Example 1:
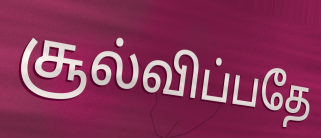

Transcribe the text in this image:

சூல்விப்பதே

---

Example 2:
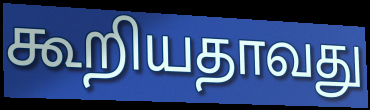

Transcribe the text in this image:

கூறியதாவது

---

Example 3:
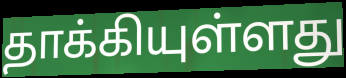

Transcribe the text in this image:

தாக்கியுள்ளது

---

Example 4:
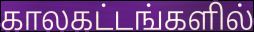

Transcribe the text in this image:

காலகட்டங்களில்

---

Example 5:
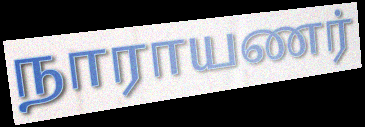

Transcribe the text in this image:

நாராயணர்